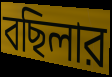
বছিলার